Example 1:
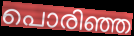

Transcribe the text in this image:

പൊരിഞ്ഞ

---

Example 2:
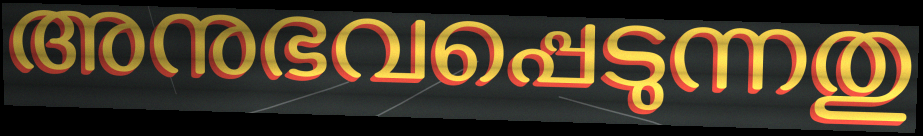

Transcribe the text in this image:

അനുഭവപ്പെടുന്നതു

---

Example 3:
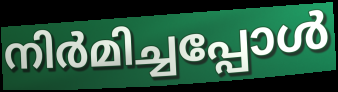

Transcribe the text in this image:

നിർമിച്ചപ്പോൾ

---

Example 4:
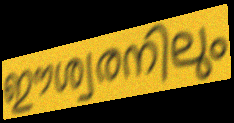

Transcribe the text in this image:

ഈശ്വരനിലും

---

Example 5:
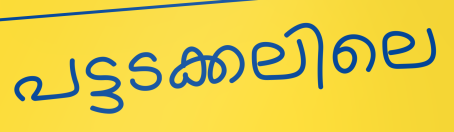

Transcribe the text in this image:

പട്ടടക്കലിലെ